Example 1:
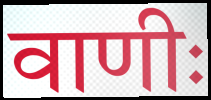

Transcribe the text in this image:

वाणीः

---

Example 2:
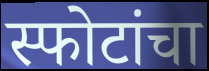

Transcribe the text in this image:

स्फोटांचा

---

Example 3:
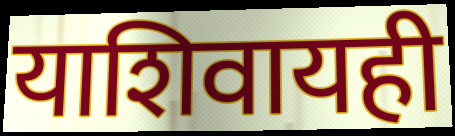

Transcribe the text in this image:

याशिवायही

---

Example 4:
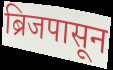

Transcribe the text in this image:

ब्रिजपासून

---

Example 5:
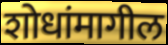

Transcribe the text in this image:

शोधांमागील